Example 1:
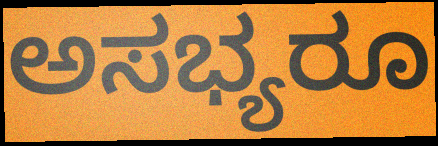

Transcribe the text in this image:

ಅಸಭ್ಯರೂ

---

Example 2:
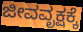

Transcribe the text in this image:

ಜೀವವೃಕ್ಷಕ್ಕೆ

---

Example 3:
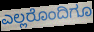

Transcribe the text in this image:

ಎಲ್ಲರೊಂದಿಗೂ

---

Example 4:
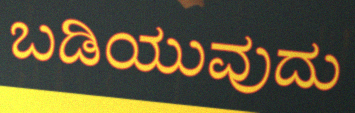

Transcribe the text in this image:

ಬಡಿಯುವುದು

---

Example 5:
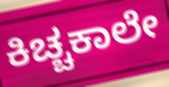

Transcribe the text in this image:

ಕಿಚ್ಚಕಾಲೇ